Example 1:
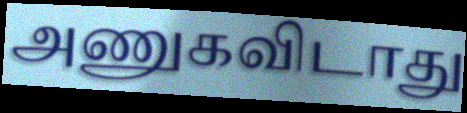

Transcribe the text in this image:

அணுகவிடாது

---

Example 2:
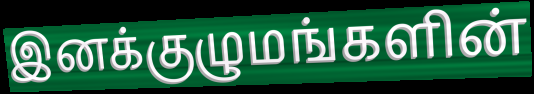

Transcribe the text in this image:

இனக்குழுமங்களின்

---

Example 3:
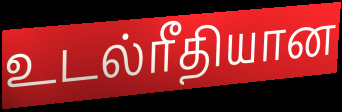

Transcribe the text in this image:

உடல்ரீதியான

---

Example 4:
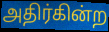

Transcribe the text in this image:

அதிர்கின்ற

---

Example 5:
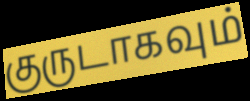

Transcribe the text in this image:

குருடாகவும்